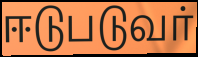
ஈடுபடுவர்